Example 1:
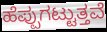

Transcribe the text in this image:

ಹೆಪ್ಪುಗಟ್ಟುತ್ತವೆ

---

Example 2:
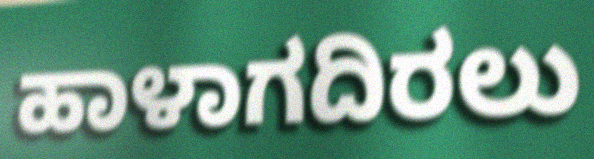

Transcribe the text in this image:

ಹಾಳಾಗದಿರಲು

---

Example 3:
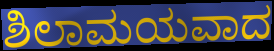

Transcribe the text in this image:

ಶಿಲಾಮಯವಾದ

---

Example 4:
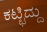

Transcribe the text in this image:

ಕಟ್ಟಿದ್ದು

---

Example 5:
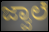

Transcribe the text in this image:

ಜ್ವಾಲೆ